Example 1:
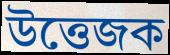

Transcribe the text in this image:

উত্তেজক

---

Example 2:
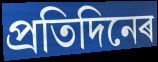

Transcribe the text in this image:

প্ৰতিদিনেৰ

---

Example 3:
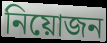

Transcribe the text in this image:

নিয়োজন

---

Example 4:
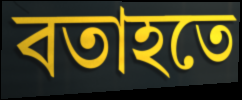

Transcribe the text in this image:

বতাহতে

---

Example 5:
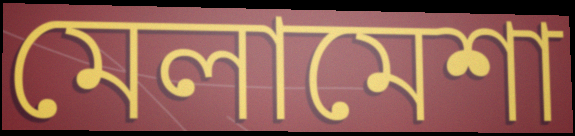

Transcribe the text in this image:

মেলামেশা